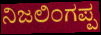
ನಿಜಲಿಂಗಪ್ಪ